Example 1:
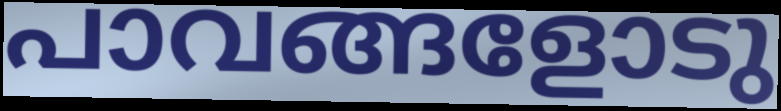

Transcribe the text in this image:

പാവങ്ങളോടു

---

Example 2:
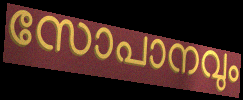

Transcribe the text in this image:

സോപാനവും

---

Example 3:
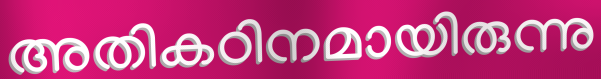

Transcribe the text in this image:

അതികഠിനമായിരുന്നു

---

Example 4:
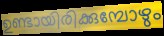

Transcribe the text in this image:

ഉണ്ടായിരിക്കുമ്പോഴും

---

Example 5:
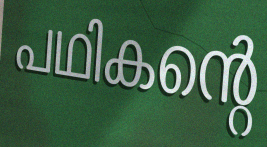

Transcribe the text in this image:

പഥികന്റെ